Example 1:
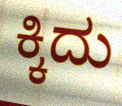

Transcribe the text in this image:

ಕ್ಕಿದು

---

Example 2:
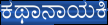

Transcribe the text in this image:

ಕಥಾನಾಯಕಿ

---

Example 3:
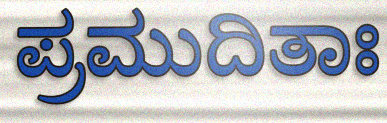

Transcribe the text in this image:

ಪ್ರಮುದಿತಾಃ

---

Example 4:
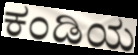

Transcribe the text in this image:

ಕಂಡಿಯ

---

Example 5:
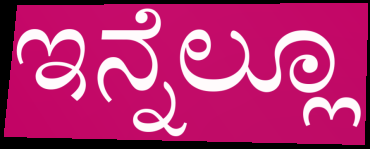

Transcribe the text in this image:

ಇನ್ನೆಲ್ಲೂ